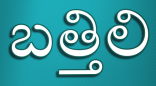
బత్తిలి